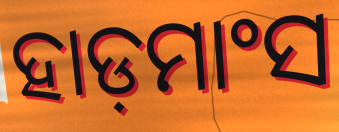
ହାଡ଼ମାଂସ